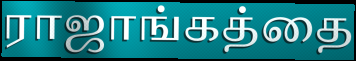
ராஜாங்கத்தை